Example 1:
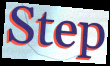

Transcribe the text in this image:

Step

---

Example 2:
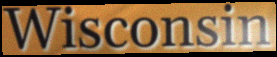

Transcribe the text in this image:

Wisconsin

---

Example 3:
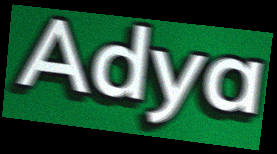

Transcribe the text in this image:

Adya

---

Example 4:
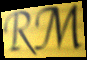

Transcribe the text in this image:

RM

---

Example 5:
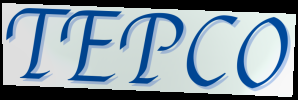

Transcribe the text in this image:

TEPCO